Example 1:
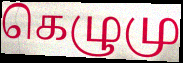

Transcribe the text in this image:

கெழுமு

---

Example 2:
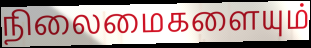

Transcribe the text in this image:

நிலைமைகளையும்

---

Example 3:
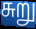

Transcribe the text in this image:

சுறு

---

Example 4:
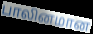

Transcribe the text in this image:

பாலினமான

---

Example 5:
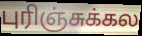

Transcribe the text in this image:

புரிஞ்சுக்கல